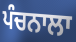
ਪੰਚਨਾਲਾ